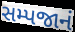
સમ્પજાનં